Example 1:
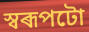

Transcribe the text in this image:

স্বৰূপটো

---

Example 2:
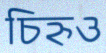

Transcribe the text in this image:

চিহ্নও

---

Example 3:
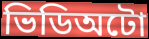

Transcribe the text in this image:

ভিডিঅটো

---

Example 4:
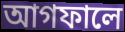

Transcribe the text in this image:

আগফালে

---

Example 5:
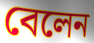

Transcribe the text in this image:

বেলেন